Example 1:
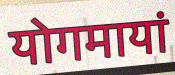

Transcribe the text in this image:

योगमायां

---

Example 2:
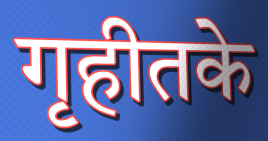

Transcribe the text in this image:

गृहीतके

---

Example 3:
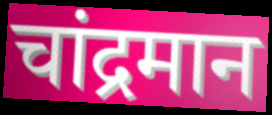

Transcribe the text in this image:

चांद्रमान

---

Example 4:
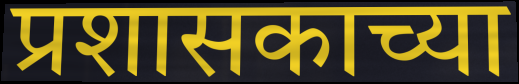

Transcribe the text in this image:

प्रशासकाच्या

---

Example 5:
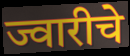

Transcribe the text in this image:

ज्वारीचे